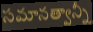
సమానత్వాన్నీ